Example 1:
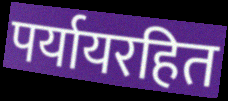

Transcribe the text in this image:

पर्यायरहित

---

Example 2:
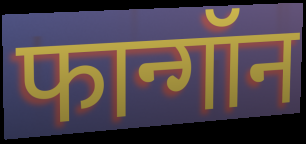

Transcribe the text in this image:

फान्गॉन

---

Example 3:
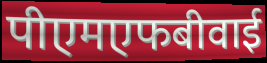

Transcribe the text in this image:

पीएमएफबीवाई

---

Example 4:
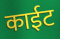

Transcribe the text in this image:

काईट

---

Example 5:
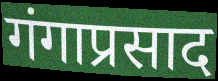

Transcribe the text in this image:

गंगाप्रसाद